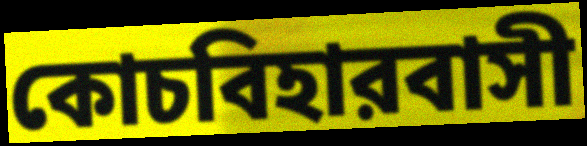
কোচবিহারবাসী